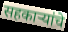
सहकार्‍यांचे